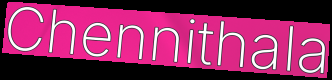
Chennithala